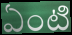
ఏంటి